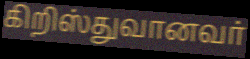
கிறிஸ்துவானவர்